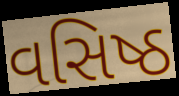
વસિષ્ઠ